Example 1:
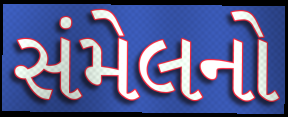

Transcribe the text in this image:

સંમેલનો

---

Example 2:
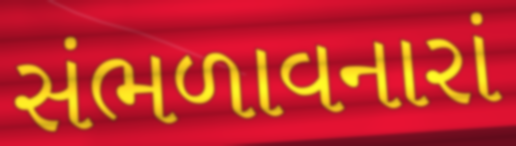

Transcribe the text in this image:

સંભળાવનારાં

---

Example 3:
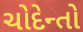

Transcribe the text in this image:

ચોદેન્તો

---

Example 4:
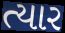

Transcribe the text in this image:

ત્‍યાર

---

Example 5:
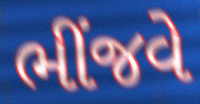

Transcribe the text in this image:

ભીંજવે